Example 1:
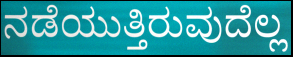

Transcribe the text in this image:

ನಡೆಯುತ್ತಿರುವುದೆಲ್ಲ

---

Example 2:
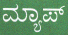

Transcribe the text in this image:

ಮ್ಯಾಪ್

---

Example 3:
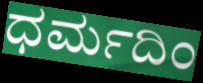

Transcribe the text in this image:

ಧರ್ಮದಿಂ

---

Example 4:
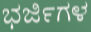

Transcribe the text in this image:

ಭರ್ಜಿಗಳ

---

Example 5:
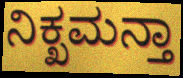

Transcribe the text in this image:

ನಿಕ್ಖಮನ್ತಾ